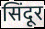
सिंदूर